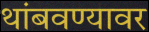
थांबवण्यावर